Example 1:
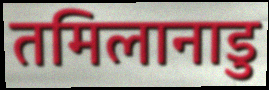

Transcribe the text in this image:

तमिलानाडु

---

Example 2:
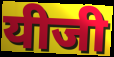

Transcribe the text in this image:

यीजी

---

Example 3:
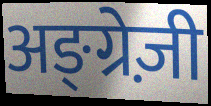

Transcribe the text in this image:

अङ्ग्रेज़ी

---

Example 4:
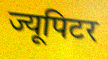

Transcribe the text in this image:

ज्यूपिटर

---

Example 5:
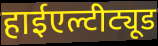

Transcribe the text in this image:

हाईएल्टीट्यूड